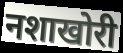
नशाखोरी